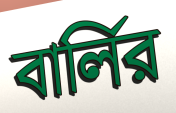
বার্লির